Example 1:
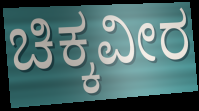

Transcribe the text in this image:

ಚಿಕ್ಕವೀರ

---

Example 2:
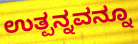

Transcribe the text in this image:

ಉತ್ಪನ್ನವನ್ನೂ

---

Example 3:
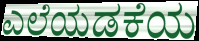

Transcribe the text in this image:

ಎಲೆಯಡಕೆಯ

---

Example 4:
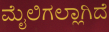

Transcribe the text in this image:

ಮೈಲಿಗಲ್ಲಾಗಿದೆ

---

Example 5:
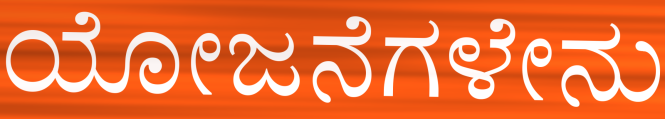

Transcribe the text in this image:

ಯೋಜನೆಗಳೇನು